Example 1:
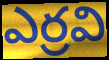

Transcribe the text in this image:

ఎర్రవి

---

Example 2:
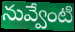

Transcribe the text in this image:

నువ్వేంటి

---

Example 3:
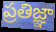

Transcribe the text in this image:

ప్రతిజ్ఞా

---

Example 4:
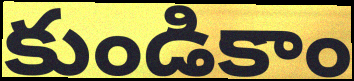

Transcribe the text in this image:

కుండికాం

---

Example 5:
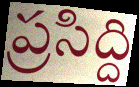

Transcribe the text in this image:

ప్రసిద్ది